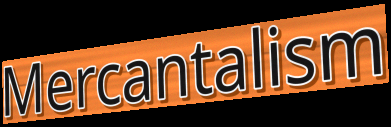
Mercantalism